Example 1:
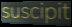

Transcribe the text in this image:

suscipit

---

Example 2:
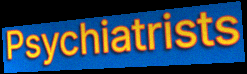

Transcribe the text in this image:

Psychiatrists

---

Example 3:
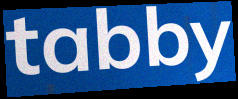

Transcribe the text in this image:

tabby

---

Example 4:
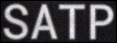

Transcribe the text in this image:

SATP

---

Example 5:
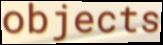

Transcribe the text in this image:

objects